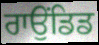
ਰਾਉਂਡਿਡ